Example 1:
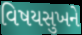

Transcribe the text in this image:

વિષયસુખને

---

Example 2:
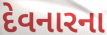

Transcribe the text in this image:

દેવનારના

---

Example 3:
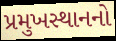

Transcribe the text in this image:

પ્રમુખસ્થાનનો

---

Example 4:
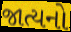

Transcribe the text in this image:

જાત્યનો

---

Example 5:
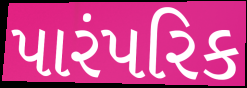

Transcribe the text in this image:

પારંપરિક